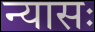
न्यासः